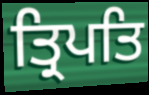
ਤ੍ਰਿਪਤਿ